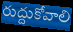
రుద్దుకోవాలి